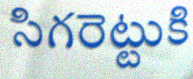
సిగరెట్టుకి